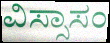
ವಿಸ್ಸಾಸಂ